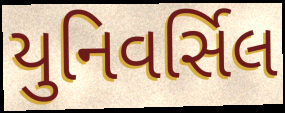
યુનિવર્સિલ